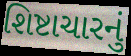
શિષ્ટાચારનું